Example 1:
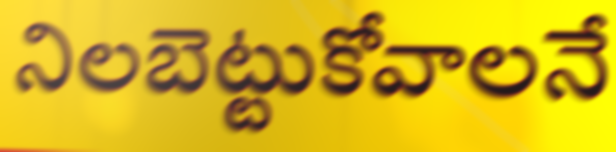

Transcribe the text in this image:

నిలబెట్టుకోవాలనే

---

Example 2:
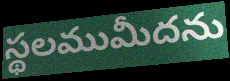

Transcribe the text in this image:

స్థలముమీదను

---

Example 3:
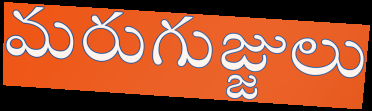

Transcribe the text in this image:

మరుగుజ్జులు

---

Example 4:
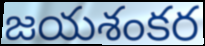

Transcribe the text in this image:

జయశంకర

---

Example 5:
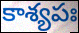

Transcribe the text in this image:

కాశ్యపః